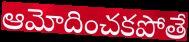
ఆమోదించకపోతే